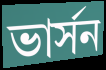
ভার্সন